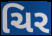
ચિર